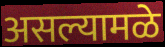
असल्यामळे